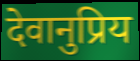
देवानुप्रिय